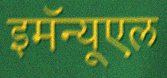
इमॅन्यूएल